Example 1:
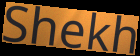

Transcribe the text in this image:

Shekh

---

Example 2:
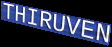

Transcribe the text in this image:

THIRUVEN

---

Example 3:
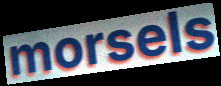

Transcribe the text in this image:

morsels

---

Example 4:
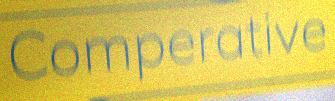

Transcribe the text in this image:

Comperative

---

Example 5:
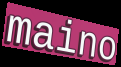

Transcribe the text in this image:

maino